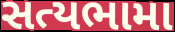
સત્યભામા